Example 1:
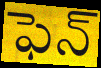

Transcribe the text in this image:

ఫెన్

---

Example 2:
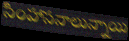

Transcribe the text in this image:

సింహాసనాలున్నాయి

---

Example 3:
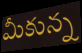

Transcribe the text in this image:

మీకున్న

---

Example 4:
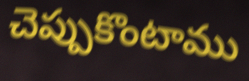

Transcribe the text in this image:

చెప్పుకొంటాము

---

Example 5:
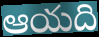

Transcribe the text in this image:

ఆయది